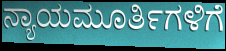
ನ್ಯಾಯಮೂರ್ತಿಗಳಿಗೆ